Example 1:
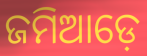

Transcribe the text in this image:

ଜମିଆଡ଼େ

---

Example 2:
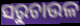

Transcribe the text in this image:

ସରୁଚାଉଳ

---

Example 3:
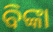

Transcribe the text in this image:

ବିଙ୍କା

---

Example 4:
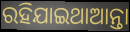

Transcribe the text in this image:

ରହିଯାଇଥାଆନ୍ତା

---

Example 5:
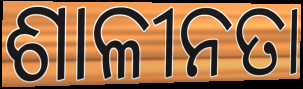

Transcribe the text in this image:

ଶାଳୀନତା